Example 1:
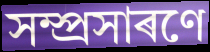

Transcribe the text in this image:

সম্প্ৰসাৰণে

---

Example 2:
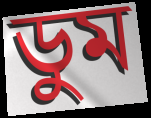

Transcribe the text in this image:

ডুম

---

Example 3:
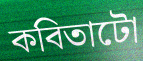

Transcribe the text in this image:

কবিতাটো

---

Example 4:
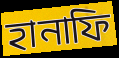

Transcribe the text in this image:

হানাফি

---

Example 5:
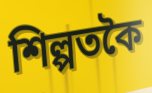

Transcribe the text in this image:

শিল্পতকৈ